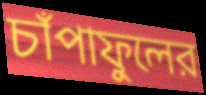
চাঁপাফুলের